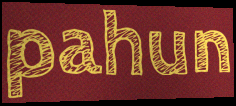
pahun